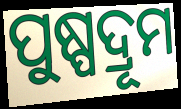
ପୁଷ୍ପଦ୍ରୂମ